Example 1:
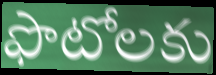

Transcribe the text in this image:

ఫొటోలకు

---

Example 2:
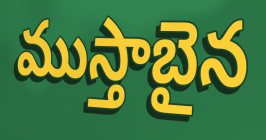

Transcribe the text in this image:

ముస్తాబైన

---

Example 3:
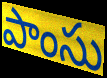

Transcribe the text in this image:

పాంసు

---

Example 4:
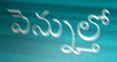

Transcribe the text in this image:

పెన్నుల్తో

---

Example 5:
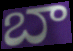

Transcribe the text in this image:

బా